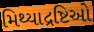
મિથ્યાદ્રષ્ટિઓ